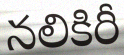
నలికిరీ